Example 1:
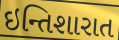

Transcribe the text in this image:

ઇન્તિશારાત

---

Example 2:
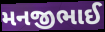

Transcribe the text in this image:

મનજીભાઈ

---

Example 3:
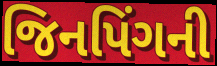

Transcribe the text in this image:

જિનપિંગની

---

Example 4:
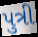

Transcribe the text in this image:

પુત્રી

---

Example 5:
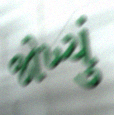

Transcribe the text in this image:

જોખ્યું